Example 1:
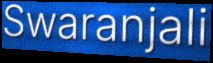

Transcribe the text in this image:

Swaranjali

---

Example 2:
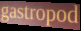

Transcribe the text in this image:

gastropod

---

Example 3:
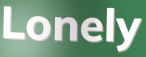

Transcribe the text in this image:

Lonely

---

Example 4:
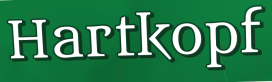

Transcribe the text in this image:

Hartkopf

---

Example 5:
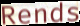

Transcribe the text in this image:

Rends